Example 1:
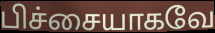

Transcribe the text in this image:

பிச்சையாகவே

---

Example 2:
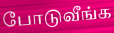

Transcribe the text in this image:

போடுவீங்க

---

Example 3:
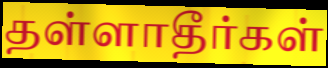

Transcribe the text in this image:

தள்ளாதீர்கள்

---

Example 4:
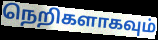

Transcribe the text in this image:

நெறிகளாகவும்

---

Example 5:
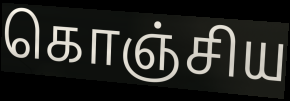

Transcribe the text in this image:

கொஞ்சிய